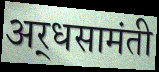
अर्धसामंती